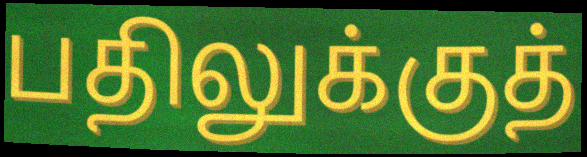
பதிலுக்குத்